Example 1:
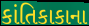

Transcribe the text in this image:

કાંતિકાકાના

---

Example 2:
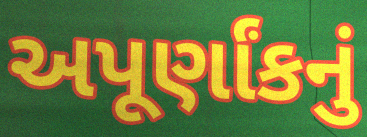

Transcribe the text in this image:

અપૂર્ણાંકનું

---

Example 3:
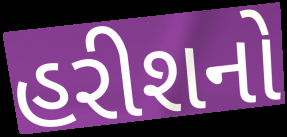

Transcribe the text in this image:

હરીશનો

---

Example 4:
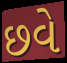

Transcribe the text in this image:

છવે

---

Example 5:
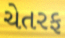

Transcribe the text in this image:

ચેતરફ